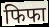
फिफा